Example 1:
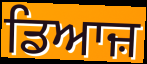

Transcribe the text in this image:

ਡਿਆਜ਼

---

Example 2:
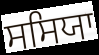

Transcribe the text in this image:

ਸਸਿਯਾ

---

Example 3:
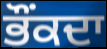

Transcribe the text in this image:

ਭੌਂਕਦਾ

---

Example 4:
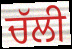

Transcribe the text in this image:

ਚੱਲੀ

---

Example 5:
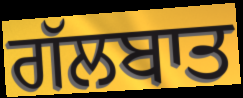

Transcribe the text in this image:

ਗੱਲਬਾਤ